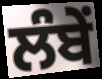
ਲੰਬੇਂ